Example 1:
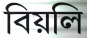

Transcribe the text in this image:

বিয়লি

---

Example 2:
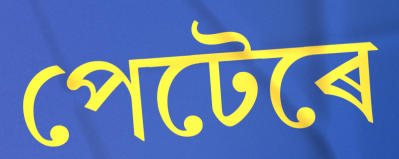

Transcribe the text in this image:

পেটেৰে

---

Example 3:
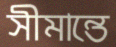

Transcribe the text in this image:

সীমান্তে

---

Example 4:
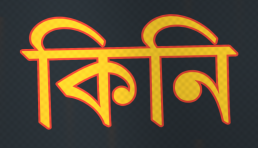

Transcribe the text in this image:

কিনি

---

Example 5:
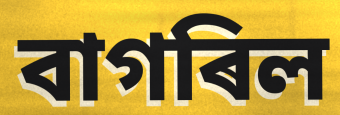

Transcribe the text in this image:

বাগৰিল